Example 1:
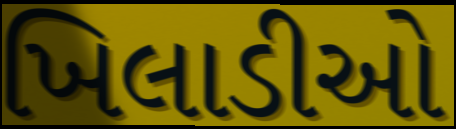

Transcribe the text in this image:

ખિલાડીઓ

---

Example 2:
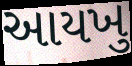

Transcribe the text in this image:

આયખુ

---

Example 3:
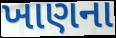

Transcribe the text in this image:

ખાણના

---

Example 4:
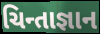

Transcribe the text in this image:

ચિન્તાજ્ઞાન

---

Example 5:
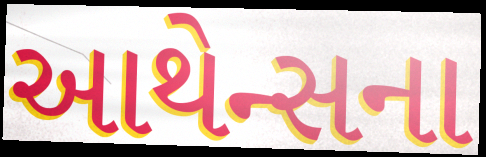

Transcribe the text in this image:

આથેન્સના